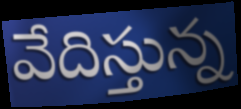
వేదిస్తున్న